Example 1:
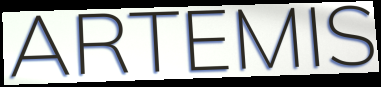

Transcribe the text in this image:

ARTEMIS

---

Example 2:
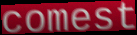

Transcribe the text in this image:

comest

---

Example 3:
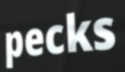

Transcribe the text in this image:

pecks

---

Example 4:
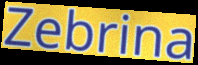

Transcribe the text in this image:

Zebrina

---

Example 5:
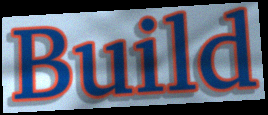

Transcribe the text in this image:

Build